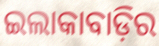
ଇଲାକାବାଡ଼ିର